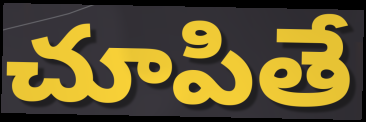
చూపితే